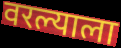
वरल्याला